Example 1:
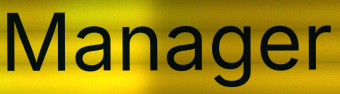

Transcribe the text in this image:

Manager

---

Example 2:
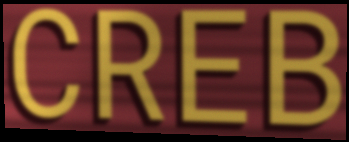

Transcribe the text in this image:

CREB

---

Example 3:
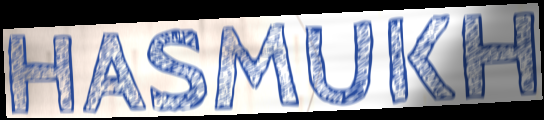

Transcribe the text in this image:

HASMUKH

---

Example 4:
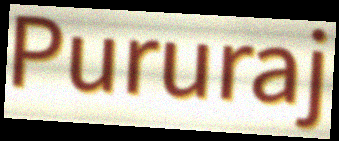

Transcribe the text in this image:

Pururaj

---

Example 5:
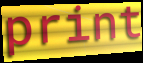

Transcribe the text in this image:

print